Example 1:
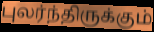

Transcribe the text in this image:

புலர்ந்திருக்கும்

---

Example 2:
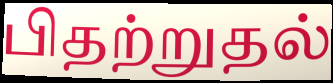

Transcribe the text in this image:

பிதற்றுதல்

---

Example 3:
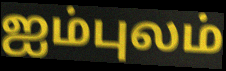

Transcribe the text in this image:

ஐம்புலம்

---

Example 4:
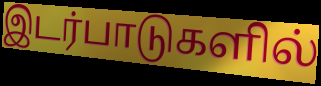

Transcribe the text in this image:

இடர்பாடுகளில்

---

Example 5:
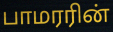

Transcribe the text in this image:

பாமரரின்